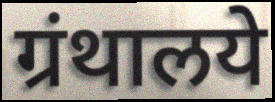
ग्रंथालये